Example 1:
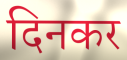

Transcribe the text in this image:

दिनकर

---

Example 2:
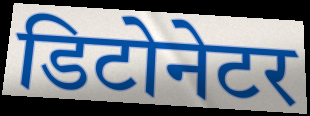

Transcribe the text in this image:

डिटोनेटर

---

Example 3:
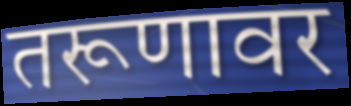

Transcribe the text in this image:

तरूणावर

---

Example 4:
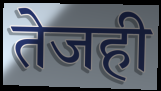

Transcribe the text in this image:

तेजही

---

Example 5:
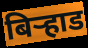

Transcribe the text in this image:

बिऱ्हाड